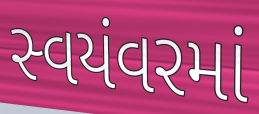
સ્વયંવરમાં